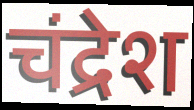
चंद्रेश